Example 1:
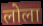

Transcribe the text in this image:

लोला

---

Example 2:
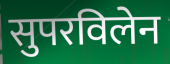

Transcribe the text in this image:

सुपरविलेन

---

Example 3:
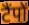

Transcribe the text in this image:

टैंपों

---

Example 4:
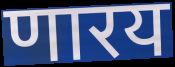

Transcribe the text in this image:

णारय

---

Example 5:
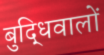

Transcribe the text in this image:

बुद्धिवालों